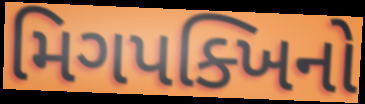
મિગપક્ખિનો